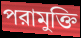
পরামুক্তি